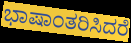
ಭಾಷಾಂತರಿಸಿದರೆ